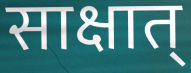
साक्षात्